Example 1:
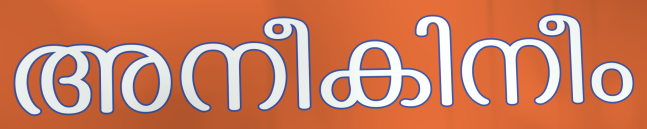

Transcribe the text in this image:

അനീകിനീം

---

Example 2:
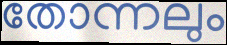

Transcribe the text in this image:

തോന്നലും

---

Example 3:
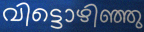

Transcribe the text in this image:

വിട്ടൊഴിഞ്ഞു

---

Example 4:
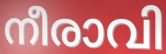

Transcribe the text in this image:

നീരാവി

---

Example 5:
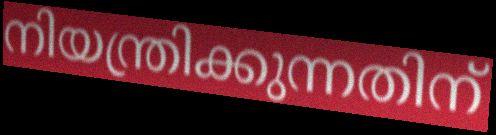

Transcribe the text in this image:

നിയന്ത്രിക്കുന്നതിന്